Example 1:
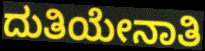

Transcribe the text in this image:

ದುತಿಯೇನಾತಿ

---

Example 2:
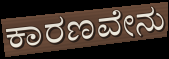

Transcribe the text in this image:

ಕಾರಣವೇನು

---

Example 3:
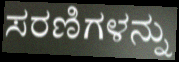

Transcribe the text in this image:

ಸರಣಿಗಳನ್ನು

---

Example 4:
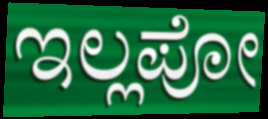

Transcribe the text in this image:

ಇಲ್ಲಪೋ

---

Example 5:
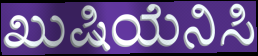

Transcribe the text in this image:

ಖುಷಿಯೆನಿಸಿ